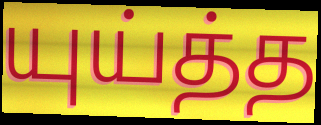
யுய்த்த